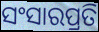
ସଂସାରପ୍ରତି